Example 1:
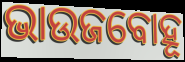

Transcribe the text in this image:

ଭାଉଜବୋହୂ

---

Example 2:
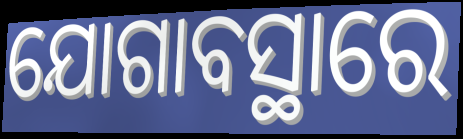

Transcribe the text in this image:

ଯୋଗାବସ୍ଥାରେ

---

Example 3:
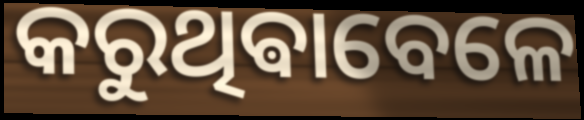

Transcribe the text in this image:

କରୁଥିଵାବେଳେ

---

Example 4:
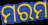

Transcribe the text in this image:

ମରମ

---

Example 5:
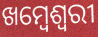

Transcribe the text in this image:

ଖମ୍ବେଶ୍ଵରୀ